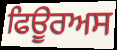
ਫਿਊਰਅਸ